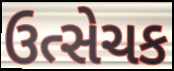
ઉત્સેચક